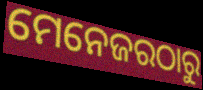
ମେନେଜରଠାରୁ